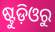
ଷ୍ଟୁଡ଼ିଓରୁ